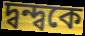
দ্বন্দ্বকে